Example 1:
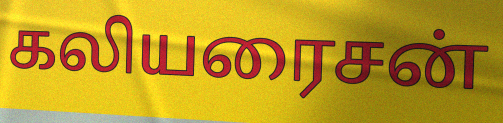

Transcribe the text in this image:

கலியரைசன்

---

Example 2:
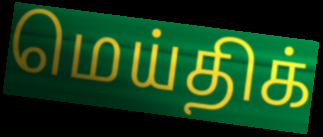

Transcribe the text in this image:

மெய்திக்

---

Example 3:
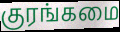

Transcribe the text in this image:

குரங்கமை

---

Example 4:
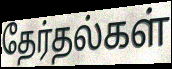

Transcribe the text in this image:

தேர்தல்கள்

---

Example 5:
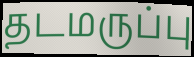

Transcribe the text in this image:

தடமருப்பு